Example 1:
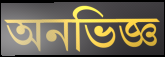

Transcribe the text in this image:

অনভিজ্ঞ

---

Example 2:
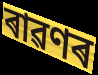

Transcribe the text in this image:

ৰাৱণৰ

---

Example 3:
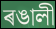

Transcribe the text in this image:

ৰঙালী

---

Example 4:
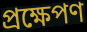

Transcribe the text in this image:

প্ৰক্ষেপণ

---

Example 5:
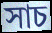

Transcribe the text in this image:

সাচ